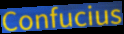
Confucius